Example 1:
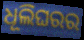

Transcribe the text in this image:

ଧୂଲିଘରର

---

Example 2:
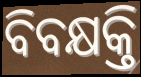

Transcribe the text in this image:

ବିବକ୍ଷକ୍ତି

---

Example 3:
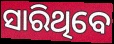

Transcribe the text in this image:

ସାରିଥିବେ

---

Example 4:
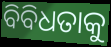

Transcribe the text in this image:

ବିବିଧତାକୁ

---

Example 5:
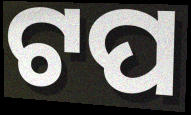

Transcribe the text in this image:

ଟପ